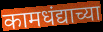
कामधंद्याच्या